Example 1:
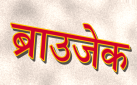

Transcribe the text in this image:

ब्राउजेक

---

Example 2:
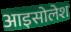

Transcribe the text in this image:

आइसोलेश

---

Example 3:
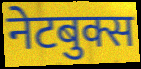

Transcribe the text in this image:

नेटबुक्स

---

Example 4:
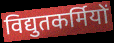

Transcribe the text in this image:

विद्युतकर्मियों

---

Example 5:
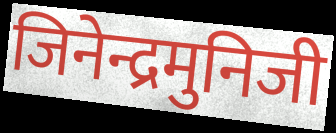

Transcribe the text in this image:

जिनेन्द्रमुनिजी